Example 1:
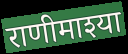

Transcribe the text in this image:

राणीमाश्या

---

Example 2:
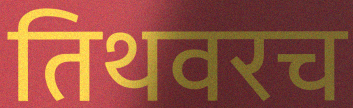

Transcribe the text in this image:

तिथवरच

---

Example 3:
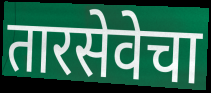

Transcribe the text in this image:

तारसेवेचा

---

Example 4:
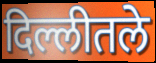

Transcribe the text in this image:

दिल्लीतले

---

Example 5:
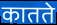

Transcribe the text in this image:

कातते